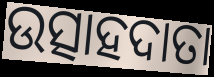
ଉତ୍ସାହଦାତା